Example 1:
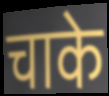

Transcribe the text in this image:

चाके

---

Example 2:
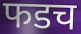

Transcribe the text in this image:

फडच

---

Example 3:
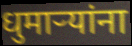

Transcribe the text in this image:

धुमाऱ्यांना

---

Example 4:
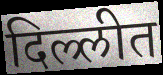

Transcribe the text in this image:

दिल्लीत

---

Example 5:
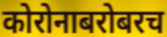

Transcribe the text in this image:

कोरोनाबरोबरच